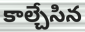
కాల్చేసిన